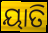
ୟାତି